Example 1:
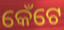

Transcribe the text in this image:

କେଁଟେ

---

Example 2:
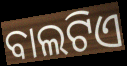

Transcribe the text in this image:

ବାଲଟିଏ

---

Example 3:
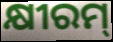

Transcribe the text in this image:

କ୍ଷୀରମ୍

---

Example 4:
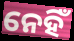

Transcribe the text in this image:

ନେହିଁ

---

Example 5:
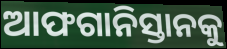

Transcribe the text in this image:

ଆଫଗାନିସ୍ତାନକୁ